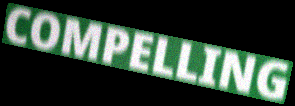
COMPELLING